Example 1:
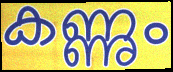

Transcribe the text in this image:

കണ്ണും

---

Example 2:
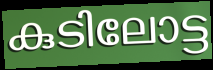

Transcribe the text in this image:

കുടിലോട്ട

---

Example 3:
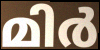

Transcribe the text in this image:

മിർ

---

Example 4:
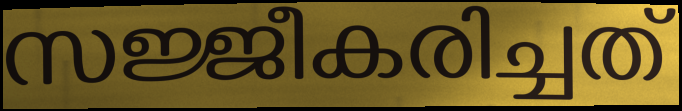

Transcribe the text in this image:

സജ്ജീകരിച്ചത്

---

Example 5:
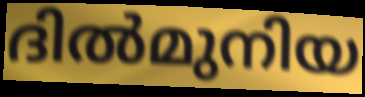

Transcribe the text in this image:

ദിൽമുനിയ